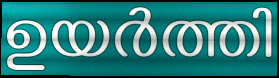
ഉയർത്തി